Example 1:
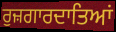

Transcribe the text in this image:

ਰੁਜ਼ਗਾਰਦਾਤਿਆਂ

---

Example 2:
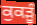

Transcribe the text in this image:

ਕੁਕੜੂੰ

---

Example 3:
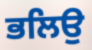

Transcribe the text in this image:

ਭਲਿਉ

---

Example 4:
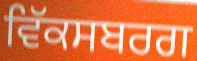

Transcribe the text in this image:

ਵਿੱਕਸਬਰਗ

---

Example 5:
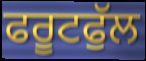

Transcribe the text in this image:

ਫਰੂਟਫੁੱਲ